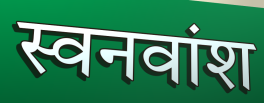
स्वनवांश